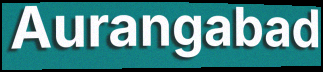
Aurangabad